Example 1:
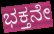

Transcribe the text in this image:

ಭಕ್ತನೇ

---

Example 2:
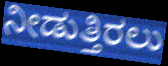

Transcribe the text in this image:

ನೀಡುತ್ತಿರಲು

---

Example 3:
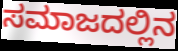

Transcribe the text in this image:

ಸಮಾಜದಲ್ಲಿನ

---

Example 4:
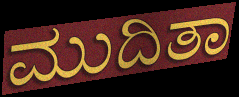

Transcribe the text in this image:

ಮುದಿತಾ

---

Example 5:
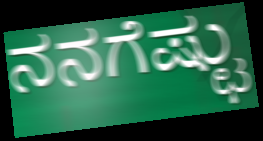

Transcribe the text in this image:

ನನಗೆಷ್ಟು